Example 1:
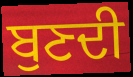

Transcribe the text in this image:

ਬੁਣਦੀ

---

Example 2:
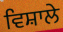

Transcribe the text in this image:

ਵਿਸ਼ਾਲੇ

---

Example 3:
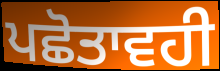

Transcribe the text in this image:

ਪਛੋਤਾਵਹੀ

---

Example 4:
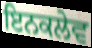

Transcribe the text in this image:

ਇਨਕਲੇਵ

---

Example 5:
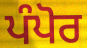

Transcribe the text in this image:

ਪੰਪੋਰ